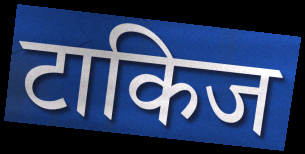
टाकिज